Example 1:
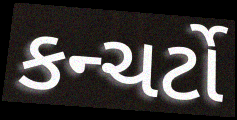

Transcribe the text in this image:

કન્ચર્ટો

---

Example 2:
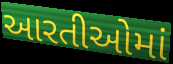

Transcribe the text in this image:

આરતીઓમાં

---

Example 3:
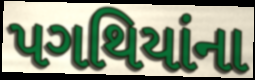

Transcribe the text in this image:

પગથિયાંના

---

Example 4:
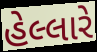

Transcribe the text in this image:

હેલ્લારે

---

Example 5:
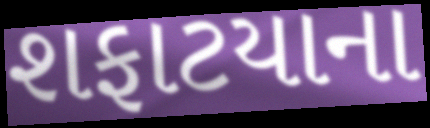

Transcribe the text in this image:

શફાટયાના